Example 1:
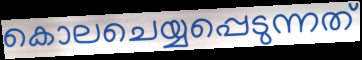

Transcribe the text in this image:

കൊലചെയ്യപ്പെടുന്നത്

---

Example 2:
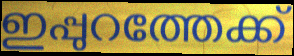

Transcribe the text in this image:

ഇപ്പുറത്തേക്ക്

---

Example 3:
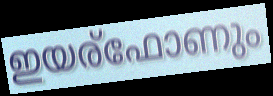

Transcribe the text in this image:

ഇയര്ഫോണും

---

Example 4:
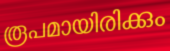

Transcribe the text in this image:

രൂപമായിരിക്കും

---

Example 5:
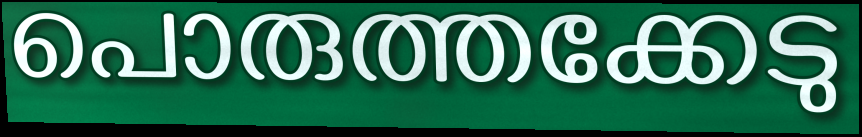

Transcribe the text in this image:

പൊരുത്തക്കേടു